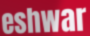
eshwar